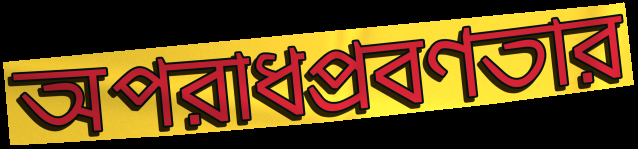
অপরাধপ্রবণতার